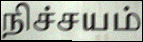
நிச்சயம்